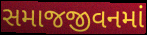
સમાજજીવનમાં